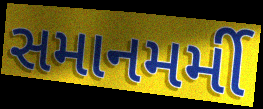
સમાનમર્મી